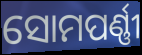
ସୋମପର୍ଣ୍ଣୀ